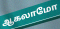
ஆகலாமோ